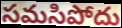
సమసిపోదు